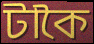
টাকৈ